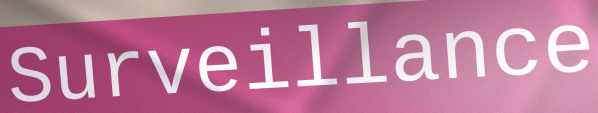
Surveillance